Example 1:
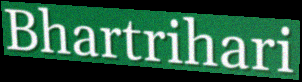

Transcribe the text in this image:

Bhartrihari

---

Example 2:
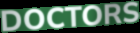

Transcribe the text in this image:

DOCTORS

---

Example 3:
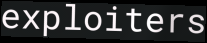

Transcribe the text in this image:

exploiters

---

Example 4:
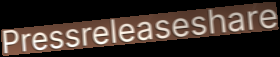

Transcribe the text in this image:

Pressreleaseshare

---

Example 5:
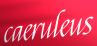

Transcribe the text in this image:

caeruleus